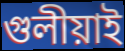
গুলীয়াই